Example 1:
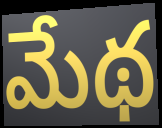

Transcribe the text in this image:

మేథ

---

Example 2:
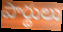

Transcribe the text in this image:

పార్థులు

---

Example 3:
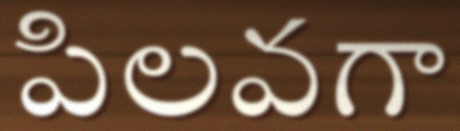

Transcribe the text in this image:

పిలవగా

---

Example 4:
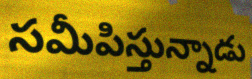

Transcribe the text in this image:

సమీపిస్తున్నాడు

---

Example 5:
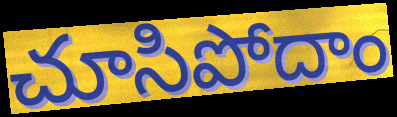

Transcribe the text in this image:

చూసిపోదాం